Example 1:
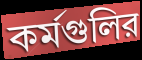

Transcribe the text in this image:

কর্মগুলির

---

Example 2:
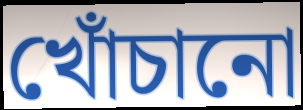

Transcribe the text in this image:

খোঁচানো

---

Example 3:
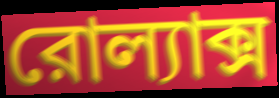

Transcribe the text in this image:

রোল্যাক্স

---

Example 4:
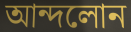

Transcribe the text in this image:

আন্দলোন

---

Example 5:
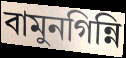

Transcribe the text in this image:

বামুনগিন্নি